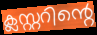
ക്ലസ്റ്ററിന്റെ